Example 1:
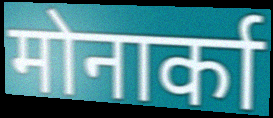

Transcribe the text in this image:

मोनार्का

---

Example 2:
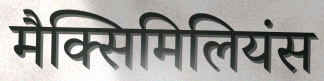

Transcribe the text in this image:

मैक्सिमिलियंस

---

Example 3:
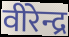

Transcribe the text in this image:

वीरेन्द्र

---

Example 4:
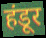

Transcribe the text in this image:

हंडूर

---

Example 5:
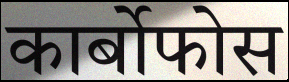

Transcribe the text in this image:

कार्बोफोस